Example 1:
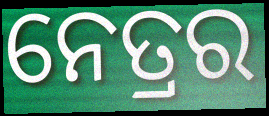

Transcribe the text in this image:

ନେତ୍ରର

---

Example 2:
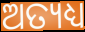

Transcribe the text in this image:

ଅତ୍ୟଧ୍ୟ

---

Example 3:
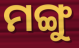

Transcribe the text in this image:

ମଙ୍ଗୁ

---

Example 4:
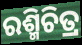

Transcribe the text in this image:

ରଶ୍ମିଚିତ୍ର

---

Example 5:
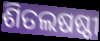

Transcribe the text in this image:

ଶିତଲଷଷ୍ଠୀ